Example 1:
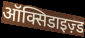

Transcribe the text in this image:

ऑक्सिडाइज़्ड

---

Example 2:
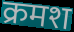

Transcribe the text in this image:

क्रमश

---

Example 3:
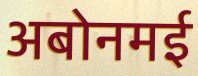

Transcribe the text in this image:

अबोनमई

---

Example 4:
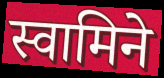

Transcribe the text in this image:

स्वामिने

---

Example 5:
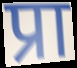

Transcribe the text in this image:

प्रा